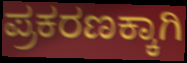
ಪ್ರಕರಣಕ್ಕಾಗಿ